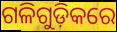
ଗଳିଗୁଡ଼ିକରେ